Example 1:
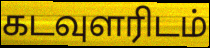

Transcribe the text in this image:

கடவுளரிடம்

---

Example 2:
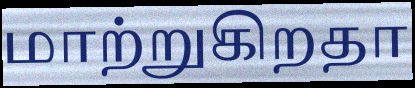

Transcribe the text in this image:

மாற்றுகிறதா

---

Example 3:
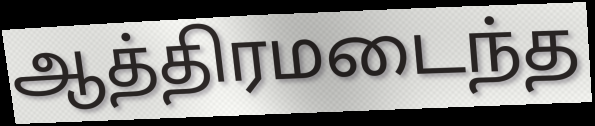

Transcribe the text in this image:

ஆத்திரமடைந்த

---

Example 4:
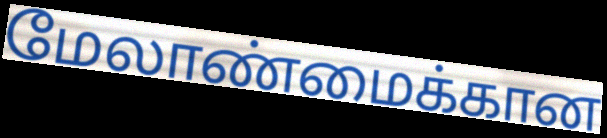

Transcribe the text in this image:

மேலாண்மைக்கான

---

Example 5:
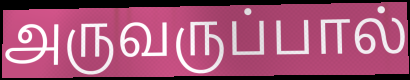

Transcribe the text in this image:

அருவருப்பால்